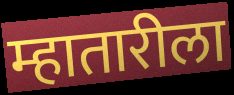
म्हातारीला